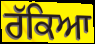
ਰੱਕਿਆ